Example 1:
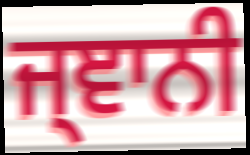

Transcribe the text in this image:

ਜ੍ਞਾਨੀ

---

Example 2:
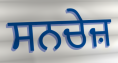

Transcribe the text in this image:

ਸਨਚੇਜ਼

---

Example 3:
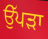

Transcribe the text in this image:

ਉੱਪੜਾ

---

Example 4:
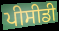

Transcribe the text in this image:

ਪੀਸੀਡੀ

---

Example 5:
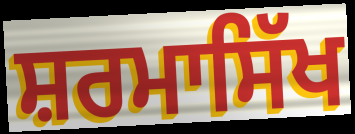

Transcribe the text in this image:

ਸ਼ਰਮਾਸਿੱਖ